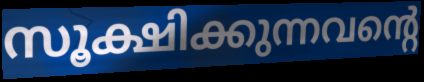
സൂക്ഷിക്കുന്നവന്റെ